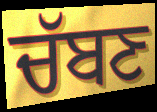
ਚੱਬਣ